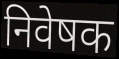
निवेषक